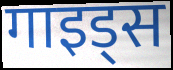
गाइड्स